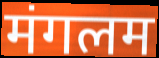
मंगलम